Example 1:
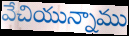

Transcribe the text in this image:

వేచియున్నాము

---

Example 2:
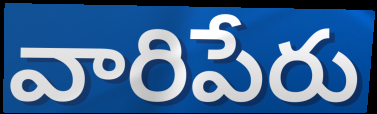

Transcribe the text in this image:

వారిపేరు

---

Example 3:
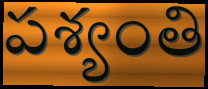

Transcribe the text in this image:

పశ్యంతి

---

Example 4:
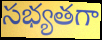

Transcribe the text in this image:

సభ్యతగా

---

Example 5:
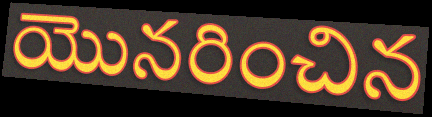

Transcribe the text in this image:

యొనరించిన